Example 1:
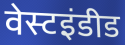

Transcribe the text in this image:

वेस्टइंडीड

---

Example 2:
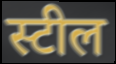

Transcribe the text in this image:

स्टील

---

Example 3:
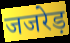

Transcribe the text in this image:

जजरेड़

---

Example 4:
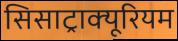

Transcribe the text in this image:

सिसाट्राक्यूरियम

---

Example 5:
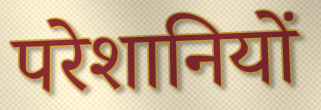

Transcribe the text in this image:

परेशानियों